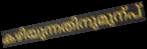
കഴിയുന്നതിനുമുന്പ്